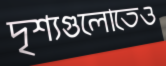
দৃশ্যগুলোতেও